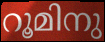
റൂമിനു